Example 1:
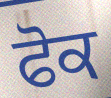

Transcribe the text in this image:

ਫੋਕ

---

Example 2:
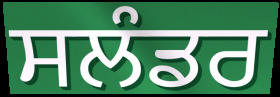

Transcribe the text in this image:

ਸਲੰਡਰ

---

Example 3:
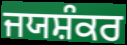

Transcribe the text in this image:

ਜਯਸ਼ੰਕਰ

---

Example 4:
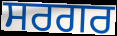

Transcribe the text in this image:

ਸਰਗਰ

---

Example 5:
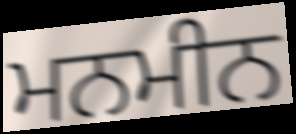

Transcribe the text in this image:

ਮਨਮੀਨ